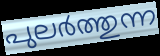
പുലർത്തുന്ന